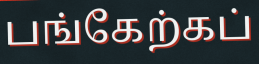
பங்கேற்கப்